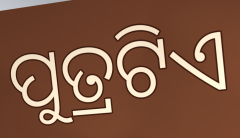
ପୁତ୍ରଟିଏ